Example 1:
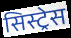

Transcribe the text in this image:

सिस्ट्रेस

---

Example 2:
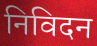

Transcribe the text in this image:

निविदन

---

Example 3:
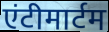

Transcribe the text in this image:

एंटीमार्टम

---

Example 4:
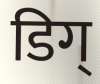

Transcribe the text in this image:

डिग्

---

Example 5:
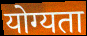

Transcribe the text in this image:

योग्यता